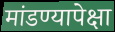
मांडण्यापेक्षा